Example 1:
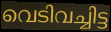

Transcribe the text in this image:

വെടിവച്ചിട്ട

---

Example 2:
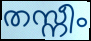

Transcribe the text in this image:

തസ്നീം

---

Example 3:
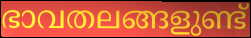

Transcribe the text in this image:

ഭാവതലങ്ങളുണ്ട്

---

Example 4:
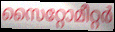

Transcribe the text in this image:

സൈറ്റോമീറ്റർ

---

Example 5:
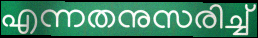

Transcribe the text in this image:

എന്നതനുസരിച്ച്